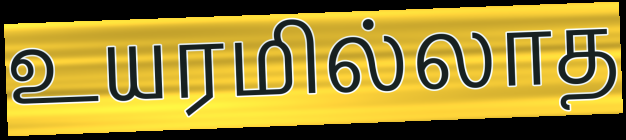
உயரமில்லாத